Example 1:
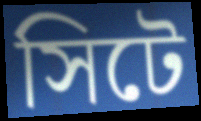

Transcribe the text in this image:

সিটে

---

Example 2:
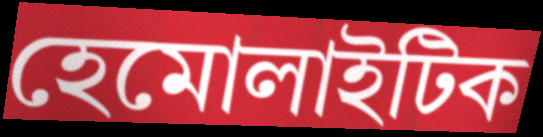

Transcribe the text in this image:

হেমোলাইটিক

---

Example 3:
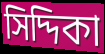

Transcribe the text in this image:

সিদ্দিকা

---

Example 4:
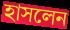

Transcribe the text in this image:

হাসলেন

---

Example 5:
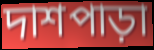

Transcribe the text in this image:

দাশপাড়া